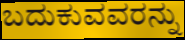
ಬದುಕುವವರನ್ನು